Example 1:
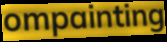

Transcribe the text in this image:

ompainting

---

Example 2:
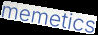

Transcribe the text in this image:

memetics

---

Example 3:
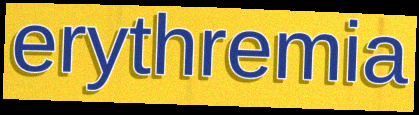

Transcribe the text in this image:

erythremia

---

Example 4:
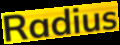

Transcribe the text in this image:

Radius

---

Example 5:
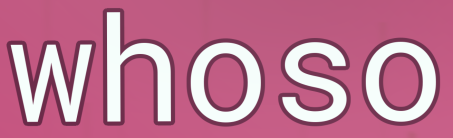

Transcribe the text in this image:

whoso